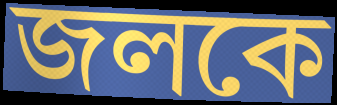
জলকে